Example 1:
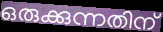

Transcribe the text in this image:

ഒരുക്കുന്നതിന്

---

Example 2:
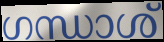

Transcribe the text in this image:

ഗന്ധാശ്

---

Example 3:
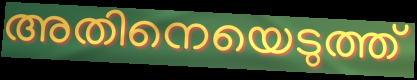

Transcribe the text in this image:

അതിനെയെടുത്ത്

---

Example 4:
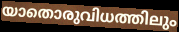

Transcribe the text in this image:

യാതൊരുവിധത്തിലും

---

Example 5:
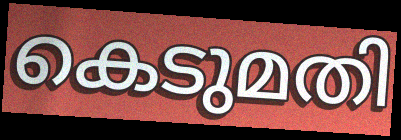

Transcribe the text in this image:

കെടുമതി